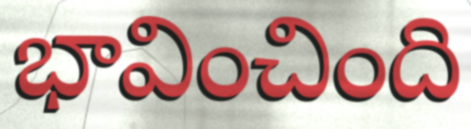
భావించింది